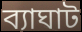
ব্যাঘাট